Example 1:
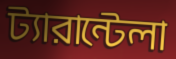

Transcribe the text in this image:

ট্যারান্টেলা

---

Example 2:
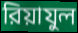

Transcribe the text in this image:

রিয়াযুল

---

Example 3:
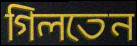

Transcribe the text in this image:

গিলতেন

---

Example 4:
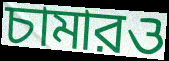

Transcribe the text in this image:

চামারও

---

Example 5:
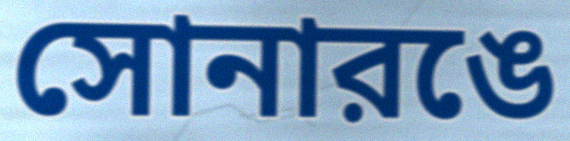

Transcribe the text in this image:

সোনারঙে